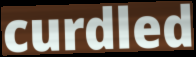
curdled